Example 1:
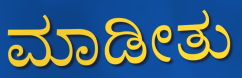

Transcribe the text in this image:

ಮಾಡೀತು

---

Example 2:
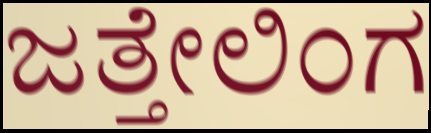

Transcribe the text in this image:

ಜತ್ತೇಲಿಂಗ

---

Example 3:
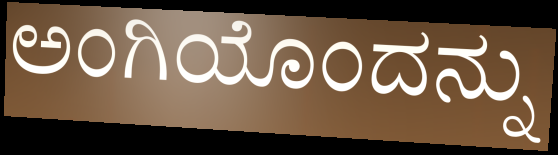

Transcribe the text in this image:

ಅಂಗಿಯೊಂದನ್ನು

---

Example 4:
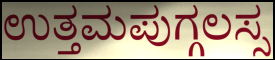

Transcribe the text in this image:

ಉತ್ತಮಪುಗ್ಗಲಸ್ಸ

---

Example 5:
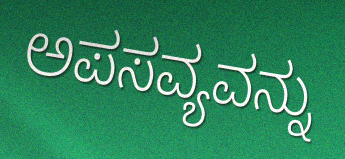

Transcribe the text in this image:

ಅಪಸವ್ಯವನ್ನು